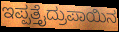
ಇಪ್ಪತ್ತೈದ್ರುಪಾಯಿನ